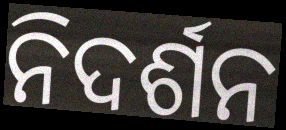
ନିଦର୍ଶନ